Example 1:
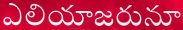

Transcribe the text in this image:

ఎలియాజరునూ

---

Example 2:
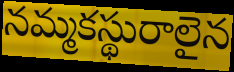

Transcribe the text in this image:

నమ్మకస్థురాలైన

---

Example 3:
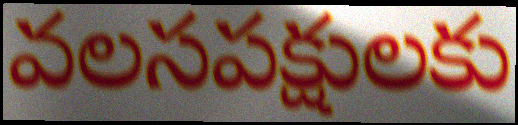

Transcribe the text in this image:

వలసపక్షులకు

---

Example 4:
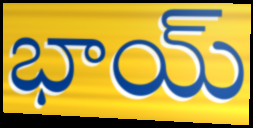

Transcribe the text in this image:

భాయ్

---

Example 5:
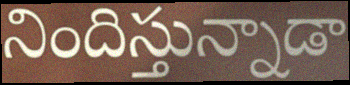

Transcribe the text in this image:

నిందిస్తున్నాడా